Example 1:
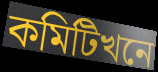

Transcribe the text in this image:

কমিটিখনে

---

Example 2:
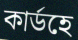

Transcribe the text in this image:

কাৰ্ডহে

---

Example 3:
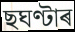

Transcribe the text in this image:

ছঘণ্টাৰ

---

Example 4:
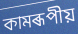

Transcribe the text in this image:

কামৰূপীয়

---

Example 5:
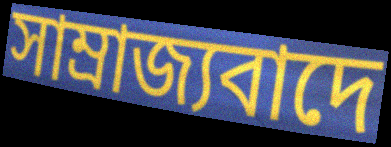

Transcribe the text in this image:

সাম্ৰাজ্যবাদে